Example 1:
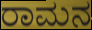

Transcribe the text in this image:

ರಾಮನ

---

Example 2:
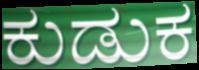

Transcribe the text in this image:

ಕುಡುಕ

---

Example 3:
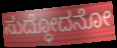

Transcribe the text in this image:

ಸುದ್ಧೋದನೋ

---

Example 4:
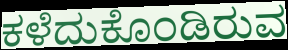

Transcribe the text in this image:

ಕಳೆದುಕೊಂಡಿರುವ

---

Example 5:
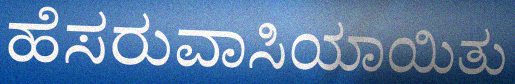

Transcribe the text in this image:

ಹೆಸರುವಾಸಿಯಾಯಿತು